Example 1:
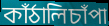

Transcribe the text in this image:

কাঁঠালিচাঁপা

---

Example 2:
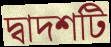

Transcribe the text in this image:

দ্বাদশটি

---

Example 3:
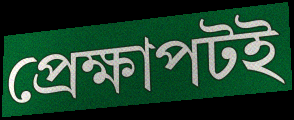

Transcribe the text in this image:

প্রেক্ষাপটই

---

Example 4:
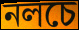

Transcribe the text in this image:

নলচে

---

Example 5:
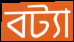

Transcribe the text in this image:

বট্যা